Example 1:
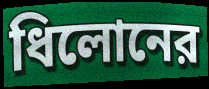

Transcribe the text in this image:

ধিলোনের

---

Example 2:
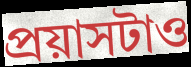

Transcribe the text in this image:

প্রয়াসটাও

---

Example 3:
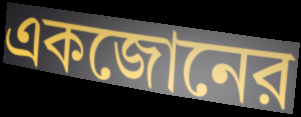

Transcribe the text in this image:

একজোনের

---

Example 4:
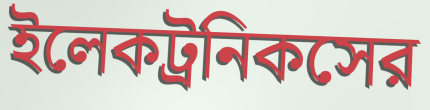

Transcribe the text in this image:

ইলেকট্রনিকসের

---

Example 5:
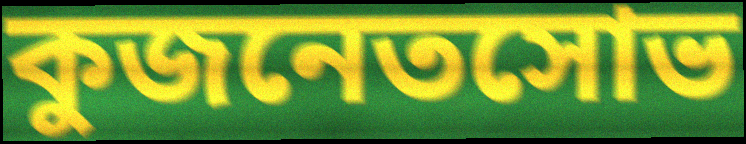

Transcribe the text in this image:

কুজনেতসোভ